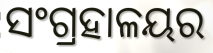
ସଂଗ୍ରହାଳୟର